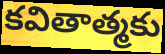
కవితాత్మకు